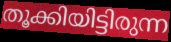
തൂക്കിയിട്ടിരുന്ന